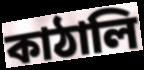
কাঠালি